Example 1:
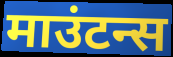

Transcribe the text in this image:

माउंटन्स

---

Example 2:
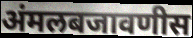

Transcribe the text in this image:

अंमलबजावणीस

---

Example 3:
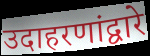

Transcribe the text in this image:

उदाहरणांद्वारे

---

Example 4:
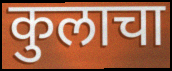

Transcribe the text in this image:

कुलाचा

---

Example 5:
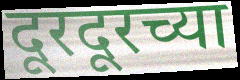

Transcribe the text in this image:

दूरदूरच्या